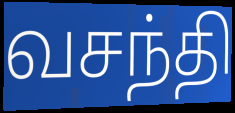
வசந்தி